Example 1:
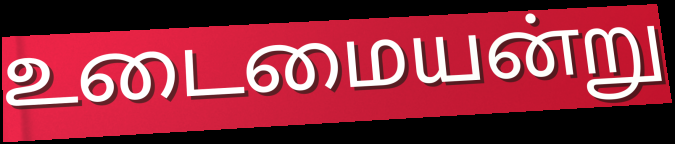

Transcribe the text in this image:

உடைமையன்று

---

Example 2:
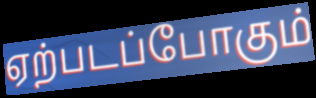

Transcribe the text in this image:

ஏற்படப்போகும்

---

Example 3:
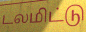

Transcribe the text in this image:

டலமிட்டு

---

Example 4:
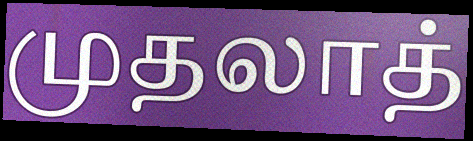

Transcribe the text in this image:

முதலாத்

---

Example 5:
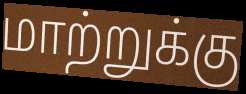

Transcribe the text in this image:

மாற்றுக்கு